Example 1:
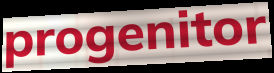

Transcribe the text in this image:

progenitor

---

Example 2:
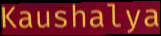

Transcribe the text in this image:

Kaushalya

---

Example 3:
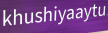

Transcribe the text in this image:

khushiyaaytu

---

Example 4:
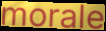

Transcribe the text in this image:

morale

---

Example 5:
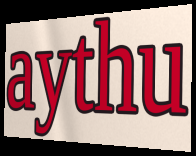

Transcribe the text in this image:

aythu